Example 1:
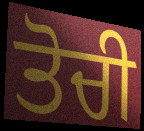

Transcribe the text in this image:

ਤੋਚੀ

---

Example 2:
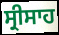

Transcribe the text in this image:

ਸ੍ਰੀਸਾਹ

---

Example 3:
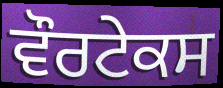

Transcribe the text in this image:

ਵੌਰਟੇਕਸ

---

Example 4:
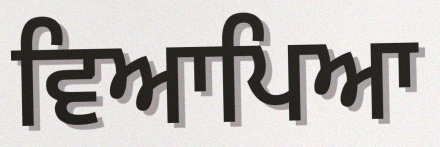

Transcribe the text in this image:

ਵਿਆਪਿਆ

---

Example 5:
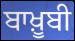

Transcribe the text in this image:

ਬਾਖ਼ੂਬੀ